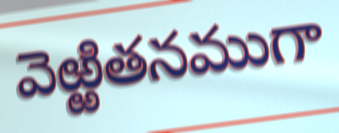
వెఱ్ఱితనముగా